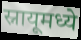
स्नायूमध्ये